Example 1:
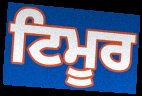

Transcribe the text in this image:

ਟਿਮੂਰ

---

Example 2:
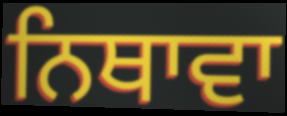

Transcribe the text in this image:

ਨਿਥਾਵਾ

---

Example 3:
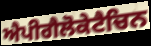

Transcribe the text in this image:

ਐਪੀਗੈਲੋਕੇਟੈਚਿਨ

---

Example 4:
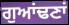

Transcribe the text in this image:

ਗੁਆਂਢਣਾਂ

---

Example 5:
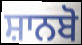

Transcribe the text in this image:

ਸ਼ਾਨਬੋ